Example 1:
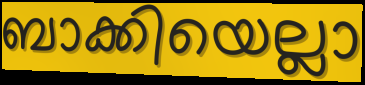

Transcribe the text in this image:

ബാക്കിയെല്ലാ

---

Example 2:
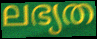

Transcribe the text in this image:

ലഭ്യത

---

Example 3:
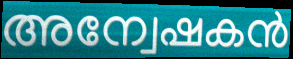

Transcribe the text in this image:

അന്വേഷകൻ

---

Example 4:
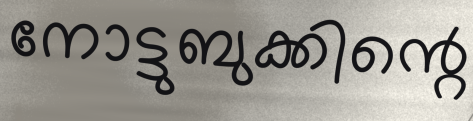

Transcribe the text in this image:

നോട്ടുബുക്കിന്റെ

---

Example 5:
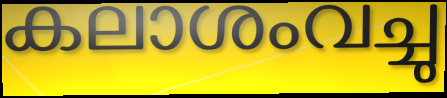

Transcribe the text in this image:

കലാശംവച്ചു